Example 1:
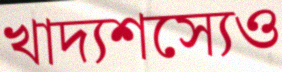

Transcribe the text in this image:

খাদ্যশস্যেও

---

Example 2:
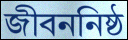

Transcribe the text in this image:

জীবননিষ্ঠ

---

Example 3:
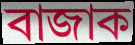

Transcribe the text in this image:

বাজাক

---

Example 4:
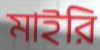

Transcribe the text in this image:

মাইরি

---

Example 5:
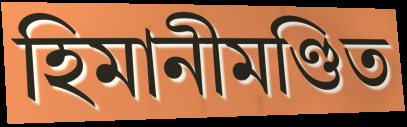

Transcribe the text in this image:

হিমানীমণ্ডিত